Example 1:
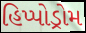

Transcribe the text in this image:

હિપ્પોડ્રોમ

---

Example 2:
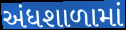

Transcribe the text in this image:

અંધશાળામાં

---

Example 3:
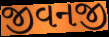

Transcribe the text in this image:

જીવનજી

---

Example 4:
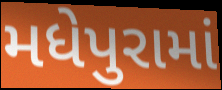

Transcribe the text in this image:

મધેપુરામાં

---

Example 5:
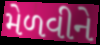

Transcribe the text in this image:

મેળવીને